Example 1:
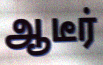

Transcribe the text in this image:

ஆடீர்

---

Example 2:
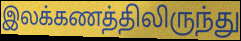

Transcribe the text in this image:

இலக்கணத்திலிருந்து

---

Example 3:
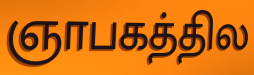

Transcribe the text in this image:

ஞாபகத்தில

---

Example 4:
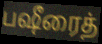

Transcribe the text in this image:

பஷீரைத்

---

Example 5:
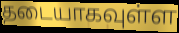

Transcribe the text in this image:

தடையாகவுள்ள